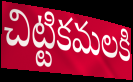
చిట్టికమలకి